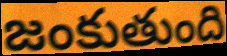
జంకుతుంది